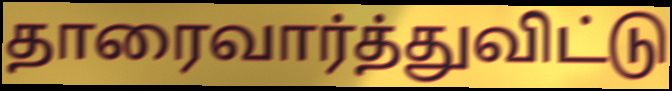
தாரைவார்த்துவிட்டு